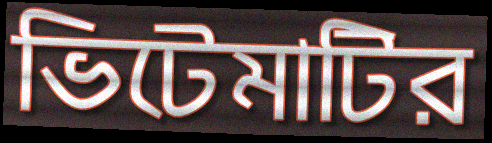
ভিটেমাটির